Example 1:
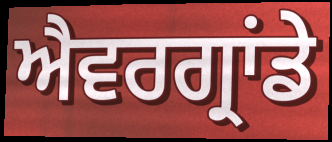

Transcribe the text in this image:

ਐਵਰਗ੍ਰਾਂਡੇ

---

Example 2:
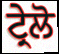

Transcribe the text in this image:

ਟ੍ਰੇਲੋ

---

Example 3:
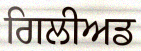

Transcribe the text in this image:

ਗਿਲੀਅਡ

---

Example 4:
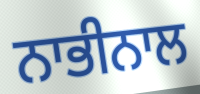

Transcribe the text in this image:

ਨਾਭੀਨਾਲ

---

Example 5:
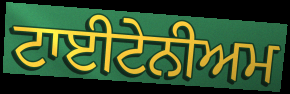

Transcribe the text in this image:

ਟਾਈਟੇਨੀਅਮ